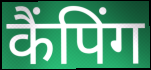
कैंपिंग